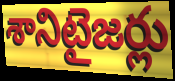
శానిటైజర్లు